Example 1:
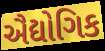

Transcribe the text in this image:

ઐદ્યોગિક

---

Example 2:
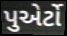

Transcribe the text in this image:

પુએર્ટો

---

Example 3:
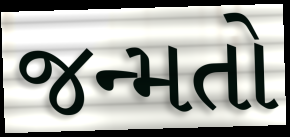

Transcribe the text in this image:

જન્મતો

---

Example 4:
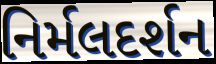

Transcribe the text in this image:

નિર્મલદર્શન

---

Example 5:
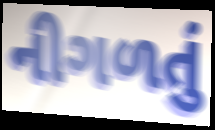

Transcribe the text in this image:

નીગળતું